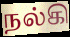
நல்கி